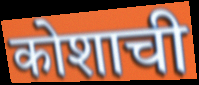
कोशाची